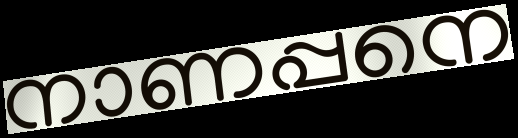
നാണപ്പനെ